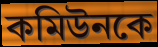
কমিউনকে